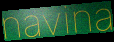
navina